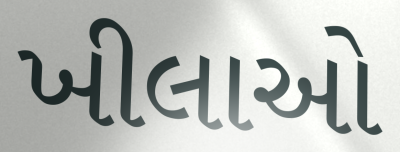
ખીલાઓ